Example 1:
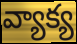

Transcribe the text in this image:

వ్యాక్య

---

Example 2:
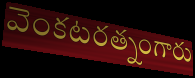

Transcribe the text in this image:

వెంకటరత్నంగారు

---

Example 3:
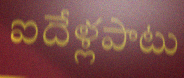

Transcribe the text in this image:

ఐదేళ్లపాటు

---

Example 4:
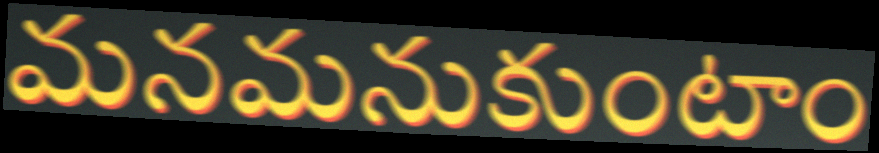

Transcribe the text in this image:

మనమనుకుంటాం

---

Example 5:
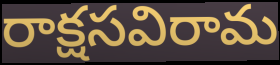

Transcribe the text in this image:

రాక్షసవిరామ